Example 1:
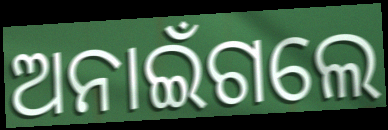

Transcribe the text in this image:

ଅନାଇଁଗଲେ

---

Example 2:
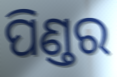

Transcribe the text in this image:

ପିଣ୍ଡର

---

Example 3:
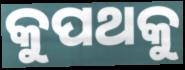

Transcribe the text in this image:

କୁପଥକୁ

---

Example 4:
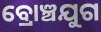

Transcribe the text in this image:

ବ୍ରୋଞ୍ଚଯୁଗ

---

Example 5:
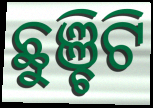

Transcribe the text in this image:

ଛୁଞ୍ଚିଟି